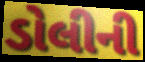
ડોલીની